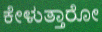
ಕೇಳುತ್ತಾರೋ